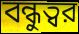
বন্ধুত্বর